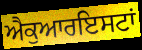
ਐਕੁਆਰਇਸਟਾਂ